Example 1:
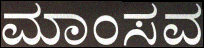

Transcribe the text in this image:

ಮಾಂಸವ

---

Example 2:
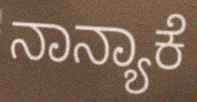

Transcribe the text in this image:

ನಾನ್ಯಾಕೆ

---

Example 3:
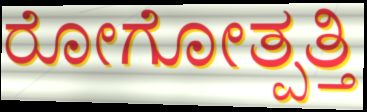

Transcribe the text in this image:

ರೋಗೋತ್ಪತ್ತಿ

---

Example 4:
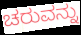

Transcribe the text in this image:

ಚರುವನ್ನು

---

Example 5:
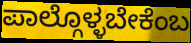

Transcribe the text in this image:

ಪಾಲ್ಗೊಳ್ಳಬೇಕೆಂಬ